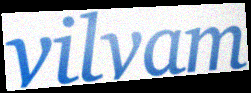
vilvam